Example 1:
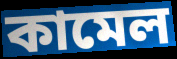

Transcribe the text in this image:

কামেল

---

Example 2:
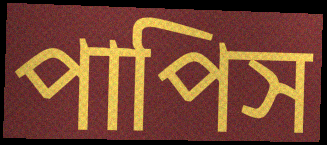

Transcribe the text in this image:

পাপিস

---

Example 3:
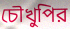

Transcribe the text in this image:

চৌখুপির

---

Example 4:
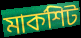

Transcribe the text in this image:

মার্কশিট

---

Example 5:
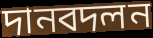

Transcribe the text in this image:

দানবদলন